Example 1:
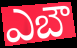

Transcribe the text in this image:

ఎబౌ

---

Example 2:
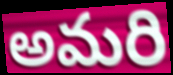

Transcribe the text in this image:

అమరి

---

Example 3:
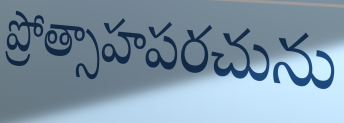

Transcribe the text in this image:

ప్రోత్సాహపరచును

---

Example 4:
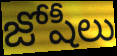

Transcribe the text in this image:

జోషీలు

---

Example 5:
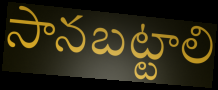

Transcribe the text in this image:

సానబట్టాలి